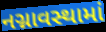
નગ્નાવસ્થામાં